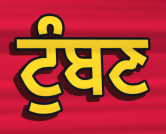
ਟੁੰਬਣ